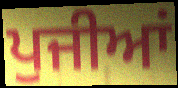
ਪੁਜੀਆਂ